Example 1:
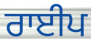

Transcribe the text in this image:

ਰਾਈਪ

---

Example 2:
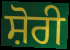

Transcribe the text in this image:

ਸ਼ੋਰੀ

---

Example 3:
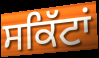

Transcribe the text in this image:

ਸਕਿੱਟਾਂ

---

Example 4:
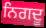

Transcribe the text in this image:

ਨਿਗਦੂ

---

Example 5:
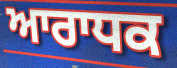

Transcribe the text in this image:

ਆਰਾਧਕ